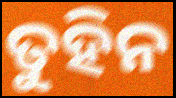
ତୁହିନ